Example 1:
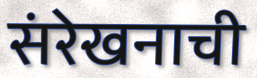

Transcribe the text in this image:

संरेखनाची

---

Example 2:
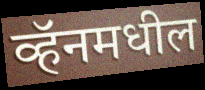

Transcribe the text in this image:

व्हॅनमधील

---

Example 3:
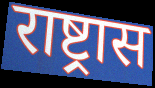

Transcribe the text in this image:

राष्ट्रास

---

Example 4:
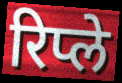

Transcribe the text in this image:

रिप्ले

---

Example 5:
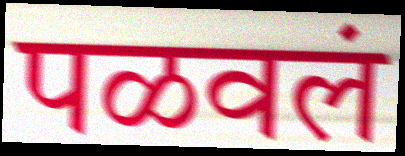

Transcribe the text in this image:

पळवलं